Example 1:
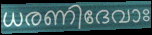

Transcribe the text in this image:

ധരണിദേവാഃ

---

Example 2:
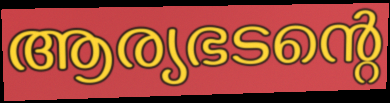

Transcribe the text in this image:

ആര്യഭടന്റെ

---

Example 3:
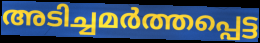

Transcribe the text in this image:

അടിച്ചമർത്തപ്പെട്ട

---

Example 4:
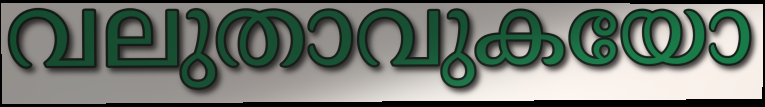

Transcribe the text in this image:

വലുതാവുകയോ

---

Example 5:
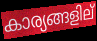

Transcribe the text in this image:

കാര്യങ്ങളില്